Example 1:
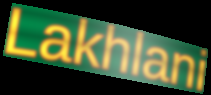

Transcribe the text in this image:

Lakhlani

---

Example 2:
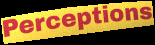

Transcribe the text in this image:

Perceptions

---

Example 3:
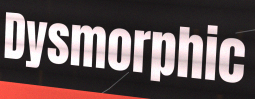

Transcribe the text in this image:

Dysmorphic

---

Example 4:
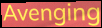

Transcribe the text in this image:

Avenging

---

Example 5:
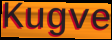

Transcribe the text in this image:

Kugve